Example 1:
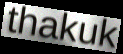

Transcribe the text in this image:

thakuk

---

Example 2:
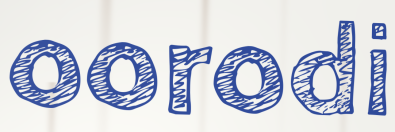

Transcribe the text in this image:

oorodi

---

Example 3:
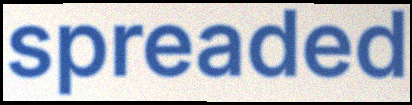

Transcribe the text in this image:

spreaded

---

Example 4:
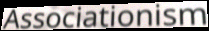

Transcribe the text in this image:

Associationism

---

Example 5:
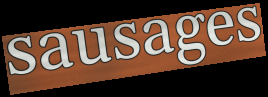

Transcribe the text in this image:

sausages